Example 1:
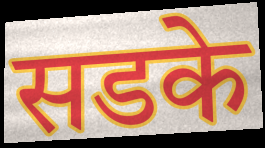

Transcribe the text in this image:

सडके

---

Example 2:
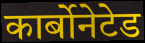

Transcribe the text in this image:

कार्बोनेटेड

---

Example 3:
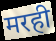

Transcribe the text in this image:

मरही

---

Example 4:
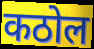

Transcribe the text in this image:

कठोल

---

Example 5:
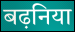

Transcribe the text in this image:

बढ़निया